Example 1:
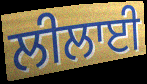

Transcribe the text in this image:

ਲੀਲਾਈ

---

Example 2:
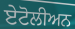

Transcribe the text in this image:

ਏਟੋਲੀਅਨ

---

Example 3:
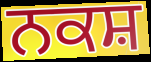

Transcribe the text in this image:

ਨਕਸ਼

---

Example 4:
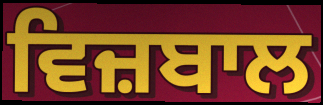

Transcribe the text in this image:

ਵਿਜ਼ਬਾਲ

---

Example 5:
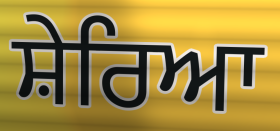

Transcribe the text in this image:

ਸ਼ੇਰਿਆ